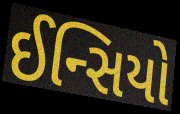
ઈન્સિયો